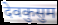
देवकुसुम